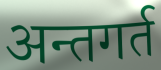
अन्तगर्त